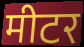
मीटर